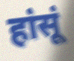
हांसूं